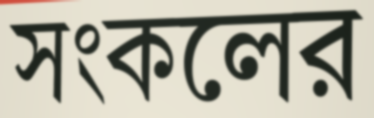
সংকলের